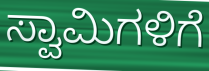
ಸ್ವಾಮಿಗಳಿಗೆ